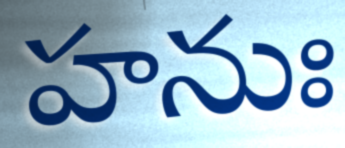
హనుః